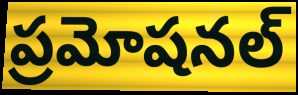
ప్రమోషనల్